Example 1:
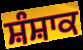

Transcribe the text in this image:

ਸ਼ੰਸ਼ਾਕ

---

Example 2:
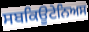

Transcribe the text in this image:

ਸਬਕਿਊਟੇਨਿਅਸ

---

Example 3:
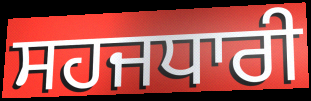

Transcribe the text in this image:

ਸਹਜਧਾਰੀ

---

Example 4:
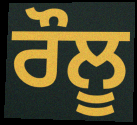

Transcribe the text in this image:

ਰੌਲੂ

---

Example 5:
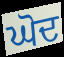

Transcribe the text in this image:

ਘੋਦ